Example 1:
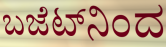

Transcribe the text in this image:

ಬಜೆಟ್‌ನಿಂದ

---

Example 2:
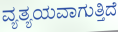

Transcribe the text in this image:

ವ್ಯತ್ಯಯವಾಗುತ್ತಿದೆ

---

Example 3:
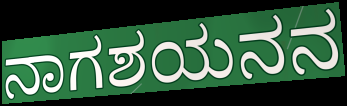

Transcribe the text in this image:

ನಾಗಶಯನನ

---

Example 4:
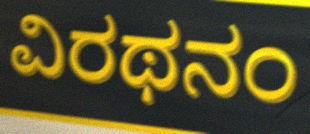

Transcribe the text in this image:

ವಿರಥನಂ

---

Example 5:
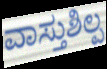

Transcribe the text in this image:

ವಾಸ್ತುಶಿಲ್ಪ